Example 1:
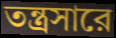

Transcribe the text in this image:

তন্ত্রসারে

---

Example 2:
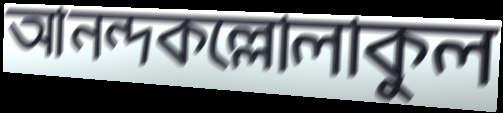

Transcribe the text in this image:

আনন্দকল্লোলাকুল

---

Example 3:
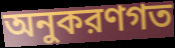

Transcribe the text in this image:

অনুকরণগত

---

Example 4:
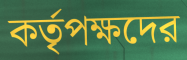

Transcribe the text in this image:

কর্তৃপক্ষদের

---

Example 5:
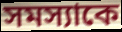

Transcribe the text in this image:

সমস্যাকে